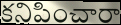
కనిపించారా